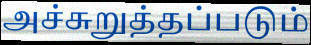
அச்சுறுத்தப்படும்